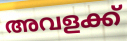
അവളക്ക്